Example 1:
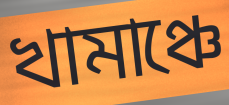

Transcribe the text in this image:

খামাঞ্চে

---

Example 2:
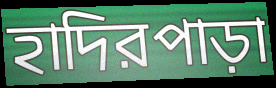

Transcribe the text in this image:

হাদিরপাড়া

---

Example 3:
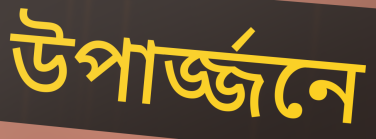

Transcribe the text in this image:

উপার্জ্জনে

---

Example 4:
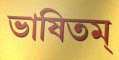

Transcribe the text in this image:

ভাষিতম্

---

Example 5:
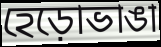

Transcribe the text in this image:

হেড়োভাঙা